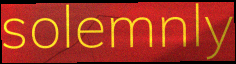
solemnly